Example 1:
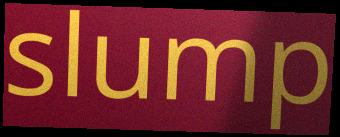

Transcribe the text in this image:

slump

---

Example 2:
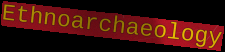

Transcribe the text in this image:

Ethnoarchaeology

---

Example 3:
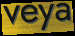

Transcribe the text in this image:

veya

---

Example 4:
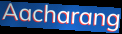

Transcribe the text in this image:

Aacharang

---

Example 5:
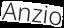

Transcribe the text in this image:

Anzio